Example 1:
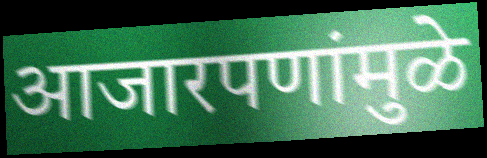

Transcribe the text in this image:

आजारपणांमुळे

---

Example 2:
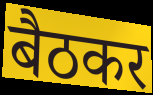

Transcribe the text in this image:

बैठकर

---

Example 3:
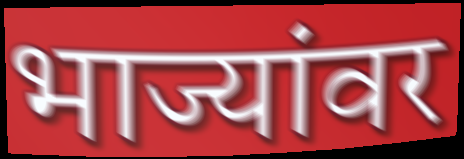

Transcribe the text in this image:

भाज्यांवर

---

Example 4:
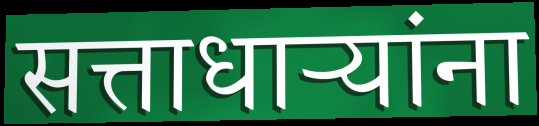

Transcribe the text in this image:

सत्ताधाऱ्यांना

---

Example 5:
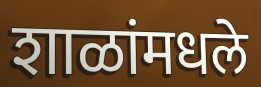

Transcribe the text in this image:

शाळांमधले